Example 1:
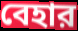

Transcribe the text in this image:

বেহার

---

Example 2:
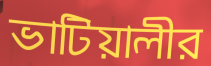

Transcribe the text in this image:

ভাটিয়ালীর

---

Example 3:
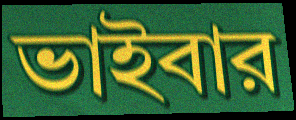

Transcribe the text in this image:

ভাইবার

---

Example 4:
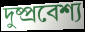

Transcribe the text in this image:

দুষ্প্রবেশ্য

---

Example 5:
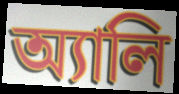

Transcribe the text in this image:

অ্যালি